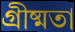
গ্ৰীষ্মতা